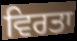
ਵਿਰਤਾ